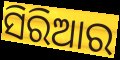
ସିରିଆର